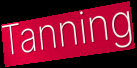
Tanning